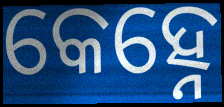
କେହ୍ନେ